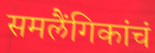
समलैंगिकांचं